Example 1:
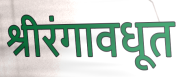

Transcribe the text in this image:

श्रीरंगावधूत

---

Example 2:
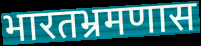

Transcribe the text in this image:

भारतभ्रमणास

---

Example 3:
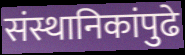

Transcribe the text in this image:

संस्थानिकांपुढे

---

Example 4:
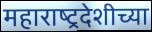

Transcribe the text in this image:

महाराष्ट्रदेशीच्या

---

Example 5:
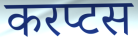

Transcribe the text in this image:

करप्टस